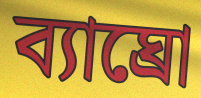
ব্যাঘ্রো